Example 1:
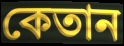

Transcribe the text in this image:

কেতান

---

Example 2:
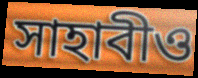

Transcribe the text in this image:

সাহাবীও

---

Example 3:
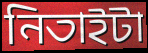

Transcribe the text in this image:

নিতাইটা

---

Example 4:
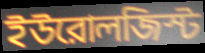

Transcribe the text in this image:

ইউরোলজিস্ট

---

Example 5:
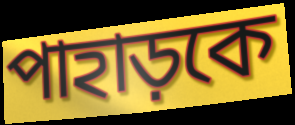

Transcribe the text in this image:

পাহাড়কে